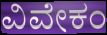
ವಿವೇಕಂ